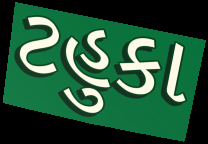
ટહુકા